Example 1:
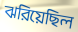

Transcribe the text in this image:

ঝরিয়েছিল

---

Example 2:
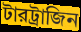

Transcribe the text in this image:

টারট্রাজিন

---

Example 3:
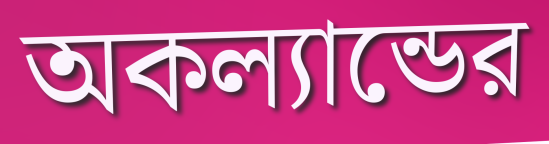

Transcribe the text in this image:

অকল্যান্ডের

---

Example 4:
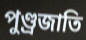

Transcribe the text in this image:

পুণ্ড্রজাতি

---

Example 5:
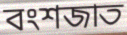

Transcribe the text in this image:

বংশজাত